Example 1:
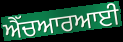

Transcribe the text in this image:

ਐੱਚਆਰਆਈ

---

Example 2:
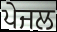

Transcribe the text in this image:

ਪੇਜਲ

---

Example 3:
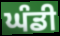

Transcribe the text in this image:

ਘੰਡੀ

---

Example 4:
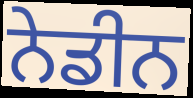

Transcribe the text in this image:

ਨੇਡੀਨ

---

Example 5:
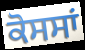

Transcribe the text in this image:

ਕੋਸਸਾਂ